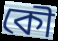
কৌ